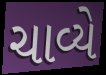
ચાવ્યે